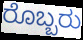
ರೊಬ್ಬರು